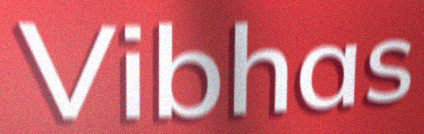
Vibhas